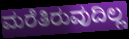
ಮರೆತಿರುವುದಿಲ್ಲ